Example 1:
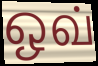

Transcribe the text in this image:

ஒவ்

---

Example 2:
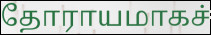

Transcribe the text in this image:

தோராயமாகச்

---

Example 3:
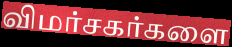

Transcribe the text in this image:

விமர்சகர்களை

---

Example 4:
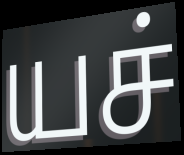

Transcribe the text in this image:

யச்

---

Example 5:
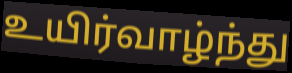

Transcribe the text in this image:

உயிர்வாழ்ந்து